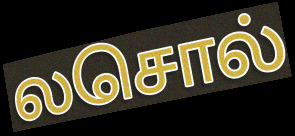
லசொல்